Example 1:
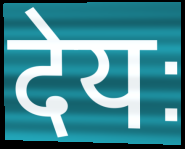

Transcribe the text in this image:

देयः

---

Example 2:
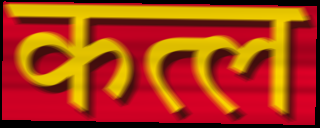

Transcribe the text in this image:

कत्‍ल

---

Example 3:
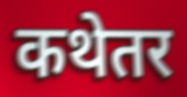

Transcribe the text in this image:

कथेतर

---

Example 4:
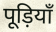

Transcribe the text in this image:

पूड़ियाँ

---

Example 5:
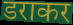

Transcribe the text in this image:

डराकर